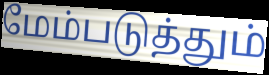
மேம்படுத்தும்